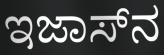
ಇಜಾಸ್‌ನ